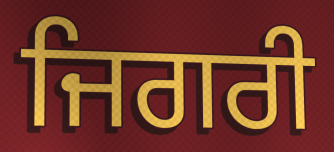
ਜਿਗਰੀ